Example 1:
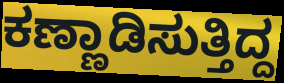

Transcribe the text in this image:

ಕಣ್ಣಾಡಿಸುತ್ತಿದ್ದ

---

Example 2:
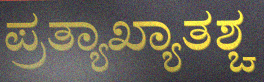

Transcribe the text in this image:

ಪ್ರತ್ಯಾಖ್ಯಾತಶ್ಚ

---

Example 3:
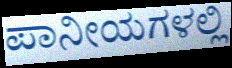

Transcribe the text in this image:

ಪಾನೀಯಗಳಲ್ಲಿ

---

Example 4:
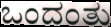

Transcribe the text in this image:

ಒಂದಂತು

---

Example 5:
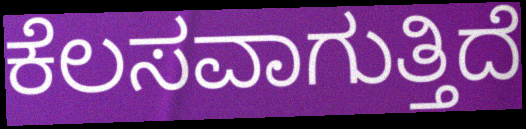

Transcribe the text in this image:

ಕೆಲಸವಾಗುತ್ತಿದೆ